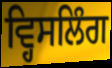
ਵ੍ਹਿਸਲਿੰਗ